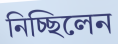
নিচ্ছিলেন